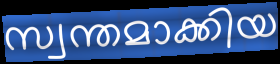
സ്വന്തമാക്കിയ